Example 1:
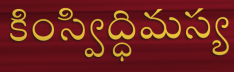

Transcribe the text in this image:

కింస్విద్ధిమస్య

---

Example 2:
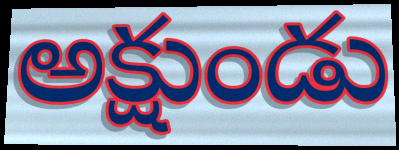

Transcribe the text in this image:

అక్షుండు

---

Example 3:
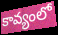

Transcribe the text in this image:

కావ్యంలో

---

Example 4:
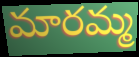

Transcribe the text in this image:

మారమ్మ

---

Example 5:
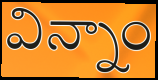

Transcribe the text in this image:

విన్నాం